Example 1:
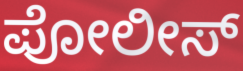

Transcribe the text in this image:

ಪೋಲೀಸ್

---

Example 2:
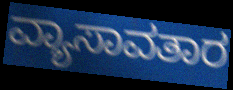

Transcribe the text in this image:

ವ್ಯಾಸಾವತಾರ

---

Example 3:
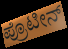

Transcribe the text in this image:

ಪ್ರೊಟೀನ್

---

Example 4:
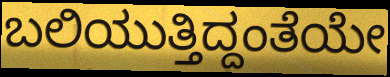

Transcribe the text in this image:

ಬಲಿಯುತ್ತಿದ್ದಂತೆಯೇ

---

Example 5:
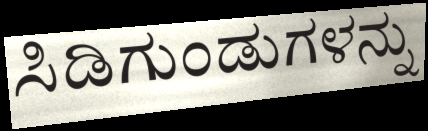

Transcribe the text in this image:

ಸಿಡಿಗುಂಡುಗಳನ್ನು